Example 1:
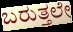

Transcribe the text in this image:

ಬರುತ್ತಲೇ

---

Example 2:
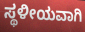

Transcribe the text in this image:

ಸ್ಥಳೀಯವಾಗಿ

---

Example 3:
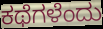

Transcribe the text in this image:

ಕಥೆಗಳೆಂದು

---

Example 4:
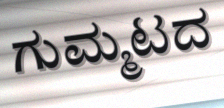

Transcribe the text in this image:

ಗುಮ್ಮಟದ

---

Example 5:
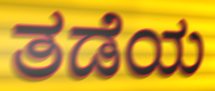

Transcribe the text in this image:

ತಡೆಯ